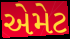
એમેટ